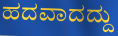
ಹದವಾದದ್ದು